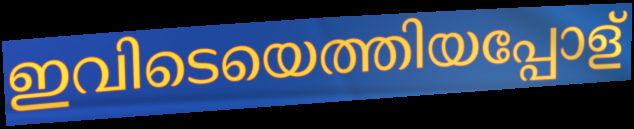
ഇവിടെയെത്തിയപ്പോള്